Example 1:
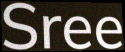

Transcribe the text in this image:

Sree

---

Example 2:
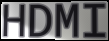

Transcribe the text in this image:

HDMI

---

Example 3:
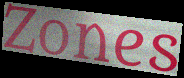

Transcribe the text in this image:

Zones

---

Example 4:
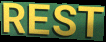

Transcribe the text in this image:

REST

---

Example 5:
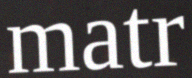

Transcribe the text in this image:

matr